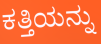
ಕತ್ತಿಯನ್ನು